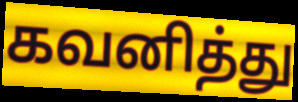
கவனித்து